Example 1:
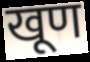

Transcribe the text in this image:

खूण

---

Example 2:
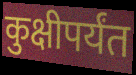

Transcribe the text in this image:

कुक्षीपर्यंत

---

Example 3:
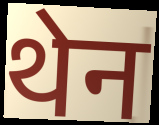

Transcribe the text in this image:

थेन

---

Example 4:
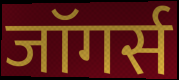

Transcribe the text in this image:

जॉगर्स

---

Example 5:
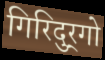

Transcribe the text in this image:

गिरिदुर्गो